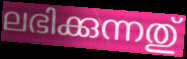
ലഭിക്കുന്നതു്